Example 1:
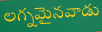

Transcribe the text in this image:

లగ్నమైనవాడు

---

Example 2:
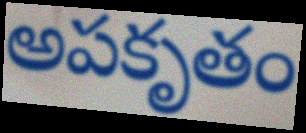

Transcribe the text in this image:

అపకృతం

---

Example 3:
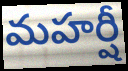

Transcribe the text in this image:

మహర్షీ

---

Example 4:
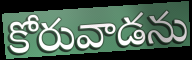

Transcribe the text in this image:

కోరువాడను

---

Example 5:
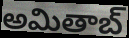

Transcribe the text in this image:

అమితాబ్